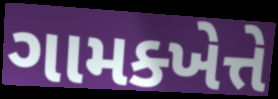
ગામક્ખેત્તે